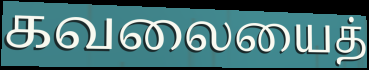
கவலையைத்